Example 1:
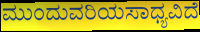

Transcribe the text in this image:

ಮುಂದುವರಿಯಸಾಧ್ಯವಿದೆ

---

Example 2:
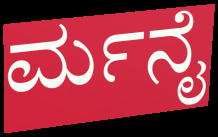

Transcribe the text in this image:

ರ್ಮನೈ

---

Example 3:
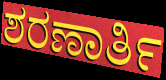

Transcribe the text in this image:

ಶರಣಾರ್ತಿ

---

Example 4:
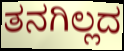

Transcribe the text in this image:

ತನಗಿಲ್ಲದ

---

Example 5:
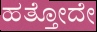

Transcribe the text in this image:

ಹತ್ತೋದೇ